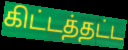
கிட்டத்தட்ட